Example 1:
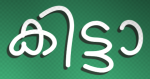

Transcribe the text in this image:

കിട്ടാ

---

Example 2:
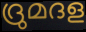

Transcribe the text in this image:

ദ്രുമദള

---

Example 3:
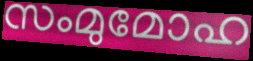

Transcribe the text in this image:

സംമുമോഹ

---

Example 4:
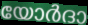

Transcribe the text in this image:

യോർദാ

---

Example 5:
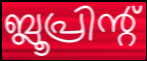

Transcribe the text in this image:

ബ്ലൂപ്രിന്റ്